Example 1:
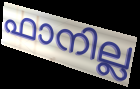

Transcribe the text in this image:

ഫാനില്ല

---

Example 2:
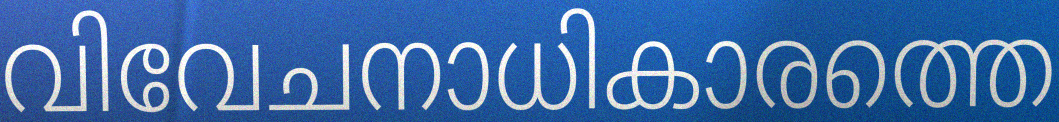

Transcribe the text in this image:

വിവേചനാധികാരത്തെ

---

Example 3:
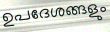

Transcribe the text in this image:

ഉപദേശങ്ങളും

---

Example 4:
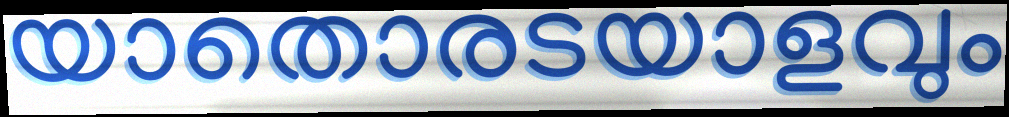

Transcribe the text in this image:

യാതൊരടയാളവും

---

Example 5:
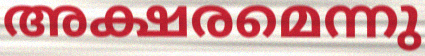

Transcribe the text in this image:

അക്ഷരമെന്നു